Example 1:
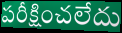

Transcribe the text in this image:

పరీక్షించలేదు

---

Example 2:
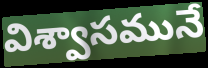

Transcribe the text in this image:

విశ్వాసమునే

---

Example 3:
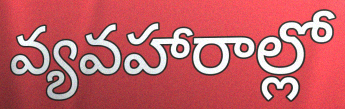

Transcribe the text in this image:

వ్యవహారాల్లో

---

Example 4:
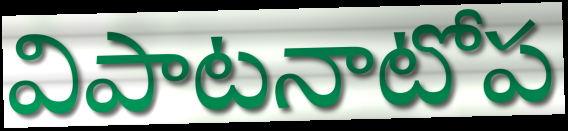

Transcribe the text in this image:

విపాటనాటోప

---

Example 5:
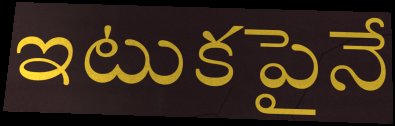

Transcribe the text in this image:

ఇటుకపైనే